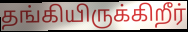
தங்கியிருக்கிறீர்